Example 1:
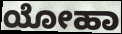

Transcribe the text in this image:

ಯೋಹಾ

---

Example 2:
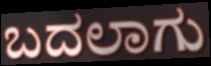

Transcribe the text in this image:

ಬದಲಾಗು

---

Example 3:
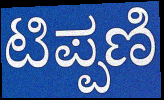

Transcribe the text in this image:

ಟಿಪ್ಪಣಿ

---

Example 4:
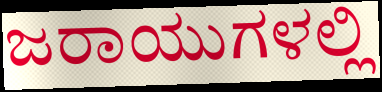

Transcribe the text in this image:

ಜರಾಯುಗಳಲ್ಲಿ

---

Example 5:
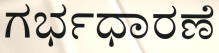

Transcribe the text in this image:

ಗರ್ಭಧಾರಣೆ